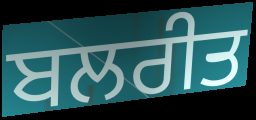
ਬਲਰੀਤ